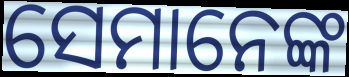
ସେମାନେଙ୍କ